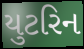
યુટરિન